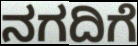
ನಗದಿಗೆ